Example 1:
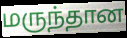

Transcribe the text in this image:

மருந்தான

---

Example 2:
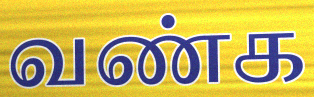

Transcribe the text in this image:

வண்க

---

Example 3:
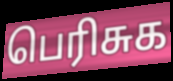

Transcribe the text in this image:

பெரிசுக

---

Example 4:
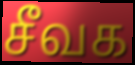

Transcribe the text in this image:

சீவக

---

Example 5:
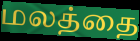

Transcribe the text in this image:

மலத்தை